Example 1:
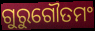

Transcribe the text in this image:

ଗୁରୁଗୌତମଂ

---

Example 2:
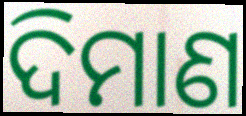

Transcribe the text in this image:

ଦିମାଣ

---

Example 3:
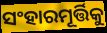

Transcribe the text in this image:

ସଂହାରମୂର୍ତ୍ତିକୁ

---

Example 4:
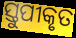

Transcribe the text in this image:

ସ୍ତୁପୀକୃତ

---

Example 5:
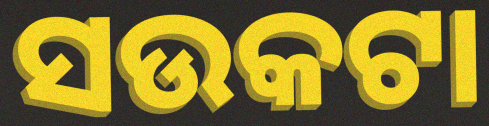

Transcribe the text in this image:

ସଉକଟା